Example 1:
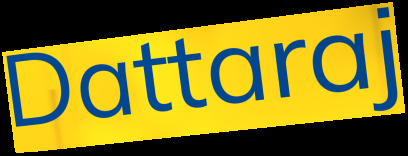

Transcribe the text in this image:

Dattaraj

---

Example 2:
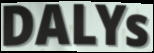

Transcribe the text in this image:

DALYs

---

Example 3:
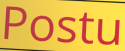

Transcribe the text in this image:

Postu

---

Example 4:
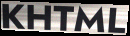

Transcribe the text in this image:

KHTML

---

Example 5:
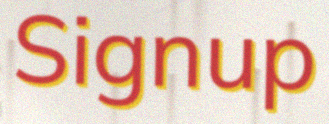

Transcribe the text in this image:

Signup